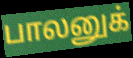
பாலனுக்